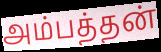
அம்பத்தன்